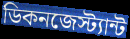
ডিকনজেস্ট্যান্ট